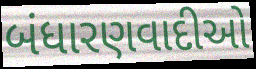
બંધારણવાદીઓ